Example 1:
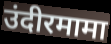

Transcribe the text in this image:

उंदीरमामा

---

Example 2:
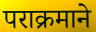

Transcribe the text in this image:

पराक्रमाने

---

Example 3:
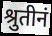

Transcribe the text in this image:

श्रुतीनं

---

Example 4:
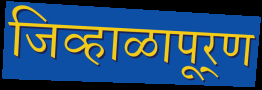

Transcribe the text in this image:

जिव्हाळापूर्ण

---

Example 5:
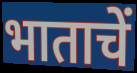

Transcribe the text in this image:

भाताचें